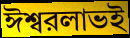
ঈশ্বরলাভই